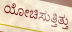
ಯೋಚಿಸುತ್ತಿತ್ತು